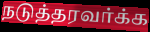
நடுத்தரவர்க்க